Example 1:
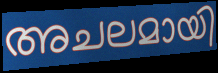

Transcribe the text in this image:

അചലമായി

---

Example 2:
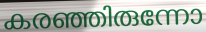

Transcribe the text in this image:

കരഞ്ഞിരുന്നോ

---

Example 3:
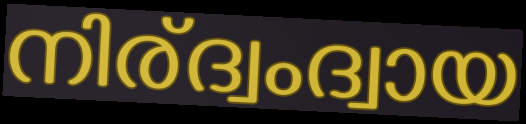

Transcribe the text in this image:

നിര്ദ്വംദ്വായ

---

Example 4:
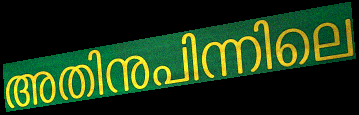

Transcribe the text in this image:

അതിനുപിന്നിലെ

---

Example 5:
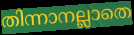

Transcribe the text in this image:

തിന്നാനല്ലാതെ